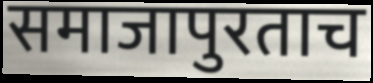
समाजापुरताच